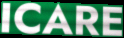
ICARE